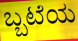
ಬ್ಬಟೆಯ